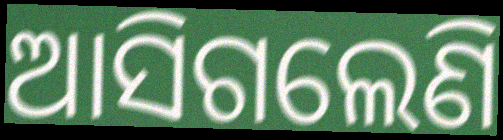
ଆସିଗଲେଣି